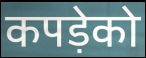
कपड़ेको